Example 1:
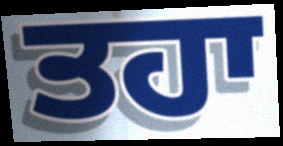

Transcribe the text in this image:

ਤਹਾ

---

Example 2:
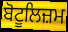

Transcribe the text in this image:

ਬੋਟੂਲਿਜ਼ਮ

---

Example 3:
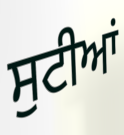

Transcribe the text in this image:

ਸੁਟੀਆਂ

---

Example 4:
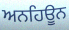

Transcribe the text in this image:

ਅਨਹਿਊਨ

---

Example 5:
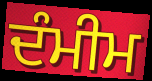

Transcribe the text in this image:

ਦੰਮੀਮ